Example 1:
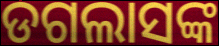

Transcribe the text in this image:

ଡଗଲାସଙ୍କ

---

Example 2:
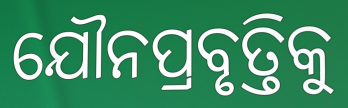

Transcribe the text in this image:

ଯୌନପ୍ରବୃତ୍ତିକୁ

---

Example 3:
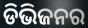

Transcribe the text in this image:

ଡିଭିଜନର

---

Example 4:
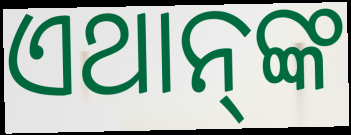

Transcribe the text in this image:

ଏଥାନ୍‍ଙ୍କ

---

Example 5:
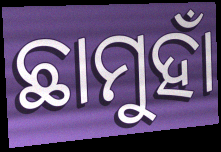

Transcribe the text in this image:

ଛାମୁହାଁ